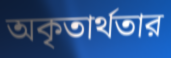
অকৃতার্থতার